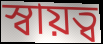
স্বায়ত্ব